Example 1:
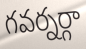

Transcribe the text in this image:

గవర్నర్గా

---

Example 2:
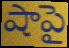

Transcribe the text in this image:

షాపై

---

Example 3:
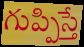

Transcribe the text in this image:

గుప్పిస్తే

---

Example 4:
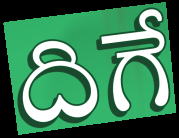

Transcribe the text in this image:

దిగే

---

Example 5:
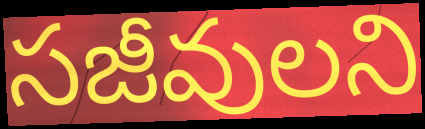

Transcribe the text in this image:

సజీవులని